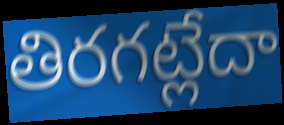
తిరగట్లేదా